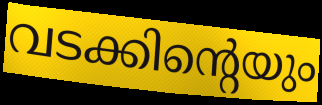
വടക്കിന്റെയും